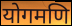
योगमणि